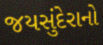
જયસુંદેરાનો